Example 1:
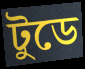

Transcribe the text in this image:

টুডে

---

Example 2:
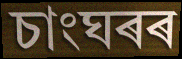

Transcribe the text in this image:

চাংঘৰৰ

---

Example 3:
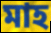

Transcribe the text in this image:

মাহ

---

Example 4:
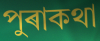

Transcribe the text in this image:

পুৰাকথা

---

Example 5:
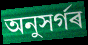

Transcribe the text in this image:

অনুসৰ্গৰ